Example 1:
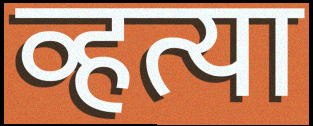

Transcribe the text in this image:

व्हत्या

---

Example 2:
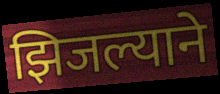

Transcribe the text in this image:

झिजल्याने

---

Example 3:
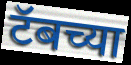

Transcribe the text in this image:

टॅबच्या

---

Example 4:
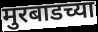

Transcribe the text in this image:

मुरबाडच्या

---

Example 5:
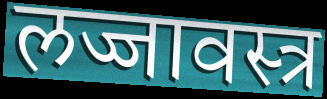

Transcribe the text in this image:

लज्जावस्त्र